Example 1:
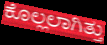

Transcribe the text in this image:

ಕೊಲ್ಲಲಾಗಿತ್ತು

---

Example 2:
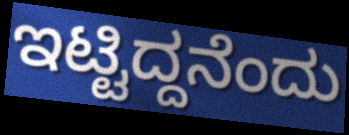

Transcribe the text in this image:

ಇಟ್ಟಿದ್ದನೆಂದು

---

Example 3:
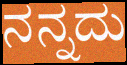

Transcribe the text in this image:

ನನ್ನದು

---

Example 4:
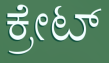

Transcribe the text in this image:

ಕ್ರೇಟ್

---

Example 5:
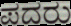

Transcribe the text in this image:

ಪದರು